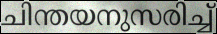
ചിന്തയനുസരിച്ച്